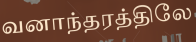
வனாந்தரத்திலே